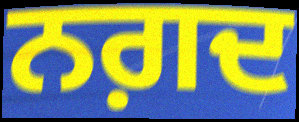
ਨਗ਼ਦ